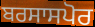
ਬਰਸਾਸਪੋਰ